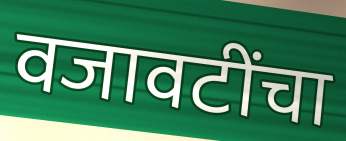
वजावटींचा